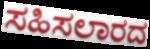
ಸಹಿಸಲಾರದ